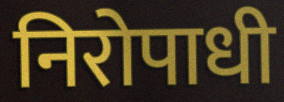
निरोपाधी